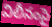
విలీనంపై